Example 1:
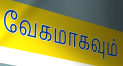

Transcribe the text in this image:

வேகமாகவும்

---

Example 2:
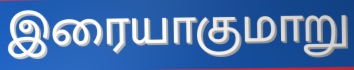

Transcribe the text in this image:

இரையாகுமாறு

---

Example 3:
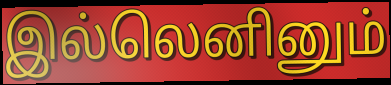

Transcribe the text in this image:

இல்லெனினும்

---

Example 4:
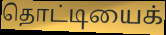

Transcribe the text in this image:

தொட்டியைக்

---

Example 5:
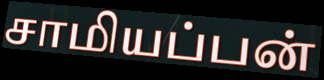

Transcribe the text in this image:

சாமியப்பன்